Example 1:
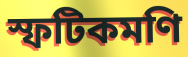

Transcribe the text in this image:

স্ফটিকমণি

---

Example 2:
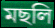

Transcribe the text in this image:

মছলি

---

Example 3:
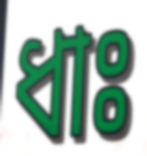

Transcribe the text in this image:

ধাঃ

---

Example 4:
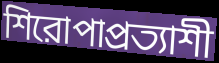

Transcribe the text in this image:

শিরোপাপ্রত্যাশী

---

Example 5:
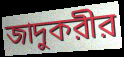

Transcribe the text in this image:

জাদুকরীর